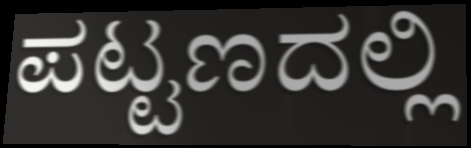
ಪಟ್ಟಣದಲ್ಲಿ